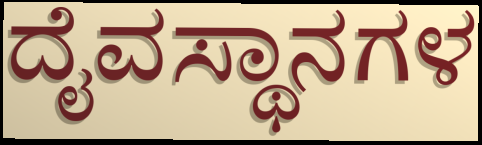
ದೈವಸ್ಥಾನಗಳ